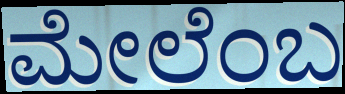
ಮೇಲೆಂಬ